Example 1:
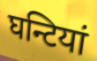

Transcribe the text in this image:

घन्टियां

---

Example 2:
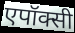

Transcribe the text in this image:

एपॉक्सी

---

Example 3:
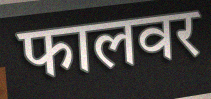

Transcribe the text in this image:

फालवर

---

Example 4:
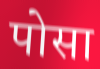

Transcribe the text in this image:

पोसा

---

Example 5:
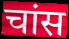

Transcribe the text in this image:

चांस